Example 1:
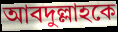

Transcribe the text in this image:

আবদুল্লাহকে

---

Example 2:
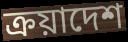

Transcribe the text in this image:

ক্রয়াদেশ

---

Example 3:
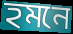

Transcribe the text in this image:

হমনে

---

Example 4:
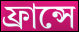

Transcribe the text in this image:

ফ্রান্সে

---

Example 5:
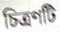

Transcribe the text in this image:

চিত্রণটি